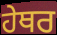
ਹੇਥਰ